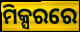
ମିକ୍ସରରେ